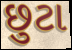
છુટા